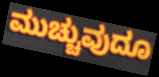
ಮುಚ್ಚುವುದೂ